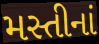
મસ્તીનાં